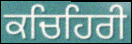
ਕਚਿਹਿਰੀ